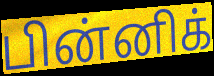
பின்னிக்